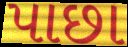
પાછા